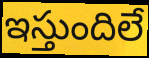
ఇస్తుందిలే